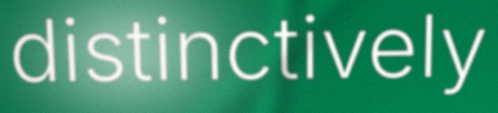
distinctively